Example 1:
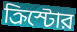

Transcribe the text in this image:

ক্রিস্টোর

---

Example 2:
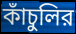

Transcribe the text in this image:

কাঁচুলির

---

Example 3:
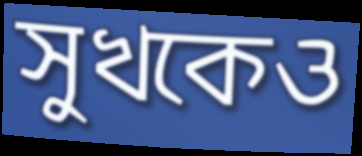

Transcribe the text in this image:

সুখকেও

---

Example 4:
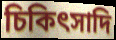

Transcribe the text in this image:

চিকিৎসাদি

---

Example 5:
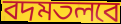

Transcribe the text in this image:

বদমতলবে